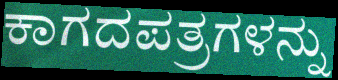
ಕಾಗದಪತ್ರಗಳನ್ನು